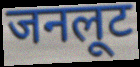
जनलूट